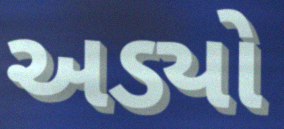
અડ્યો